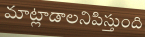
మాట్లాడాలనిపిస్తుంది